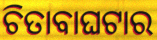
ଚିତାବାଘଟାର